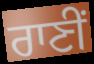
ਰਾਣੀਂ